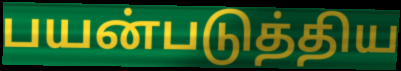
பயன்படுத்திய